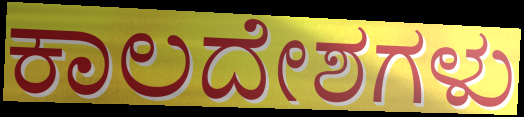
ಕಾಲದೇಶಗಳು